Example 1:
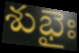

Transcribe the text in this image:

శుభైః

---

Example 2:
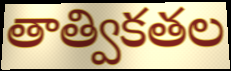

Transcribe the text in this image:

తాత్వికతల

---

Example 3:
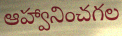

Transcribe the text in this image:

ఆహ్వానించగల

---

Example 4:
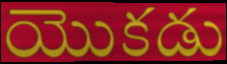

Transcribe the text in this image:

యొకడు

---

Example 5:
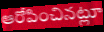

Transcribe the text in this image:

ఆరోపించినట్లూ